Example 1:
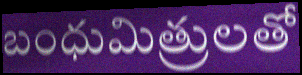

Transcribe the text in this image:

బంధుమిత్రులతో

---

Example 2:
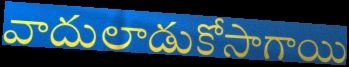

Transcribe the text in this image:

వాదులాడుకోసాగాయి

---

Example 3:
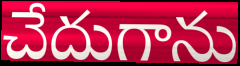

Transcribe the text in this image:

చేదుగాను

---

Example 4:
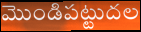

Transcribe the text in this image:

మొండిపట్టుదల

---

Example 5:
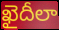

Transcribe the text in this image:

ఖైదీలా